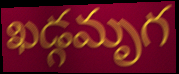
ఖడ్గమృగ